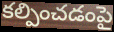
కల్పించడంపై